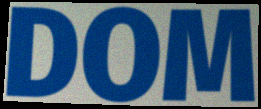
DOM